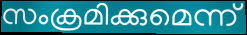
സംക്രമിക്കുമെന്ന്